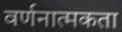
वर्णनात्मकता